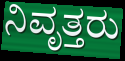
ನಿವೃತ್ತರು